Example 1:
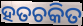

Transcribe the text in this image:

ହତଚକିତ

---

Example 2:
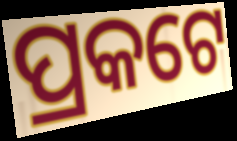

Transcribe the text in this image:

ପ୍ରକଟେ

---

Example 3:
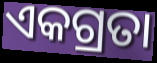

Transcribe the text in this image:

ଏକଗ୍ରତା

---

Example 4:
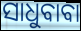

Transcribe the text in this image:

ସାଧୁବାବା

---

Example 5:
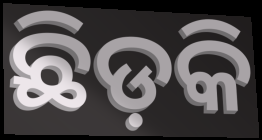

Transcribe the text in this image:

ଛିଡ଼କି